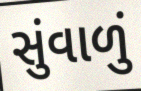
સુંવાળું